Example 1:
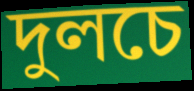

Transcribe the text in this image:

দুলচে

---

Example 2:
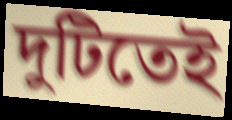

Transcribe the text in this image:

দুটিতেই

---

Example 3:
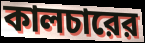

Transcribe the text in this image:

কালচারের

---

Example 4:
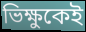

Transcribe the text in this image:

ভিক্ষুকেই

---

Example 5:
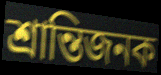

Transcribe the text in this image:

শ্রান্তিজনক